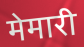
मेमारी